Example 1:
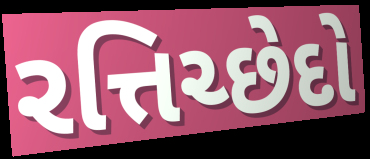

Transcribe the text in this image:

રત્તિચ્છેદો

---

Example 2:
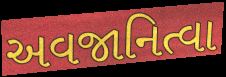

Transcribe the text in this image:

અવજાનિત્વા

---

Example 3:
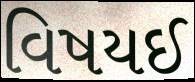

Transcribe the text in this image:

વિષયઈ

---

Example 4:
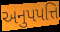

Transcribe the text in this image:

અનુપપત્તિ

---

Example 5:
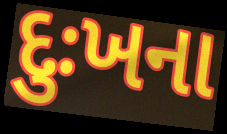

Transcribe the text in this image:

દુઃખના